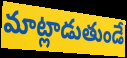
మాట్లాడుతుండే